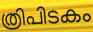
ത്രിപിടകം